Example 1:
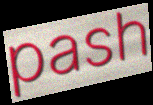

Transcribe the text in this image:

pash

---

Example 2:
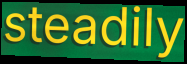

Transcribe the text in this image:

steadily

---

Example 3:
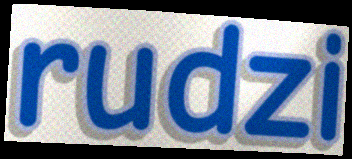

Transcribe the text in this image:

rudzi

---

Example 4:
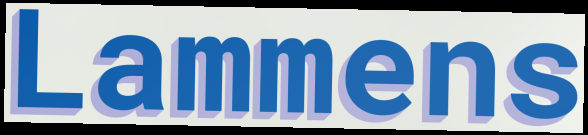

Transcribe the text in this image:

Lammens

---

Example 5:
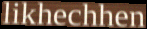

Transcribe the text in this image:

likhechhen